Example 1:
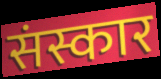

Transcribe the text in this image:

संस्‍कार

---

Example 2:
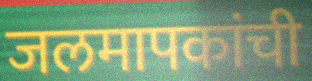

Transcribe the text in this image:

जलमापकांची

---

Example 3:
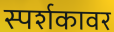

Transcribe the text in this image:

स्पर्शकावर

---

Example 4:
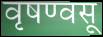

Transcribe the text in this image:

वृषण्वसू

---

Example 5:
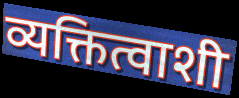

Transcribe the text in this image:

व्यक्तित्वाशी